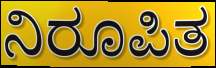
ನಿರೂಪಿತ